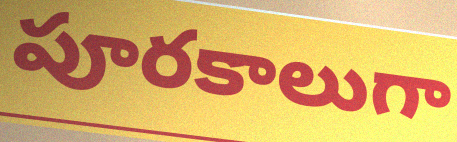
పూరకాలుగా